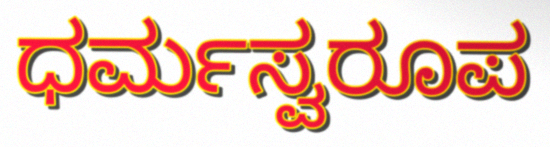
ಧರ್ಮಸ್ವರೂಪ